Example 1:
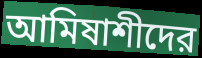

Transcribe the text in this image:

আমিষাশীদের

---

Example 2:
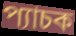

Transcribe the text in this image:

প্যাচক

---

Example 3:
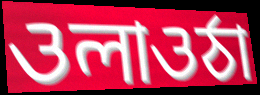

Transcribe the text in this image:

ওলাওঠা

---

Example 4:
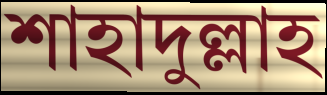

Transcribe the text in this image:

শাহাদুল্লাহ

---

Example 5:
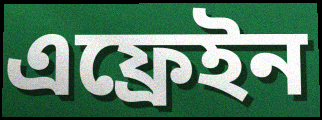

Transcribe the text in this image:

এফ্রেইন